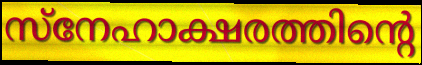
സ്നേഹാക്ഷരത്തിന്റെ